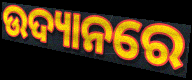
ଉଦ୍ୟାନରେ